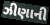
ઝીણાની